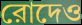
রোদেও